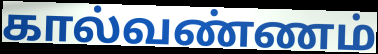
கால்வண்ணம்